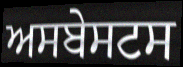
ਅਸਬੇਸਟਸ